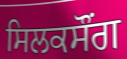
ਸਿਲਕਸੌਂਗ